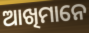
ଆଖିମାନେ